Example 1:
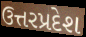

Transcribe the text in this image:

ઉત્તરપ્રદેશ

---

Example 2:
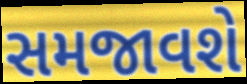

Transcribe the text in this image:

સમજાવશે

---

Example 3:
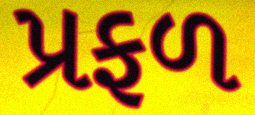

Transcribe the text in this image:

પ્રફળ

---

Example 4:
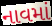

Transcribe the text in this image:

નાવમાં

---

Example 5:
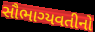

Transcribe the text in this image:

સૌભાગ્યવતીનો